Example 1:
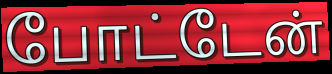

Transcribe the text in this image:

போட்டேன்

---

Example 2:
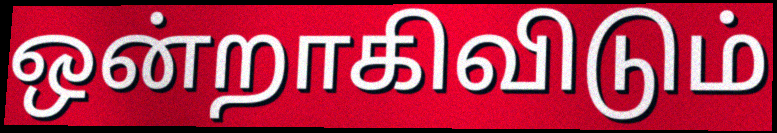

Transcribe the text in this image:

ஒன்றாகிவிடும்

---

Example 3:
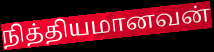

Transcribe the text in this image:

நித்தியமானவன்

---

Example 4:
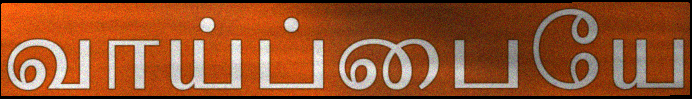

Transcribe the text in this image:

வாய்ப்பையே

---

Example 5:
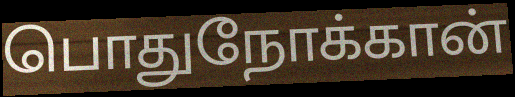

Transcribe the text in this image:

பொதுநோக்கான்